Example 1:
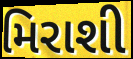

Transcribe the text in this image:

મિરાશી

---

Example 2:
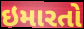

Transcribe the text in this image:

ઇમારતો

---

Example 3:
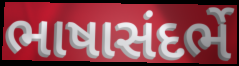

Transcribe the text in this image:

ભાષાસંદર્ભે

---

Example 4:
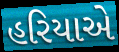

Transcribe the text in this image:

હરિયાએ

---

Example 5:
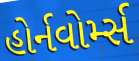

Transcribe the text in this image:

હોર્નવોર્મ્સ